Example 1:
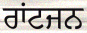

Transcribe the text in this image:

ਰਾਂਟਜਨ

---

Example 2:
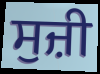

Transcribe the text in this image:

ਸੁਜ਼ੀ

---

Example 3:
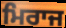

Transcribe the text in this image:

ਮਿਰਾਜ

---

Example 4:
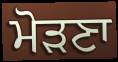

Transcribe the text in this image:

ਮੋੜਣਾ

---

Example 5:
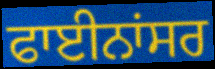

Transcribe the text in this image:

ਫਾਈਨਾਂਸਰ